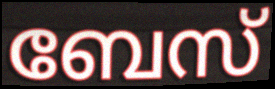
ബേസ്